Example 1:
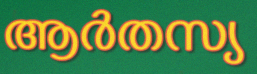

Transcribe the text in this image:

ആർതസ്യ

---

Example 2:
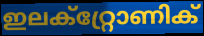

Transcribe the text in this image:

ഇലക്റ്റ്രോണിക്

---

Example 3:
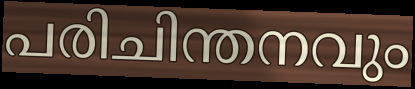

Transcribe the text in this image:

പരിചിന്തനവും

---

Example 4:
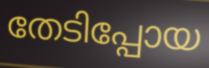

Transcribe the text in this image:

തേടിപ്പോയ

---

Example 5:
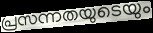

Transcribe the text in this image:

പ്രസന്നതയുടെയും